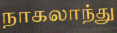
நாகலாந்து